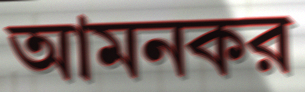
আমনকর